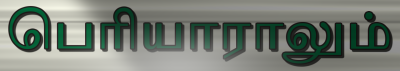
பெரியாராலும்